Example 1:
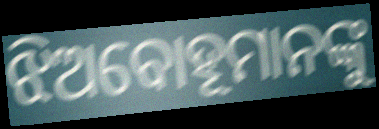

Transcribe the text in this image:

ଝିଅବୋହୂମାନଙ୍କୁ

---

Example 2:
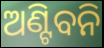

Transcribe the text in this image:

ଅଣ୍ଟିବନି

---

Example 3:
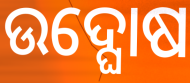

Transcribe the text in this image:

ଉଦ୍ଘୋଷ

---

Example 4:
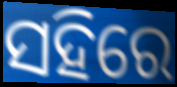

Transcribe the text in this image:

ସହିରେ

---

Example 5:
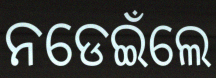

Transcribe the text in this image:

ନଡେଇଁଲେ